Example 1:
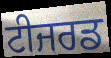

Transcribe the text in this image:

ਟੀਜਰਡ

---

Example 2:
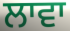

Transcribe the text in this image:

ਲਾਵਾ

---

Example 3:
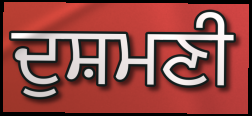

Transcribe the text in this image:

ਦੁਸ਼ਮਣੀ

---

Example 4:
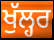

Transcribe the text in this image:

ਖੁੱਲ੍ਹਰ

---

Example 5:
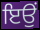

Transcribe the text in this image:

ਇਉਂ